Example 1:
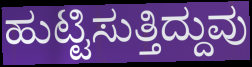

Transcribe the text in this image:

ಹುಟ್ಟಿಸುತ್ತಿದ್ದುವು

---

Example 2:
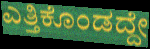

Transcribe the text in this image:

ಎತ್ತಿಕೊಂಡದ್ದೇ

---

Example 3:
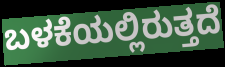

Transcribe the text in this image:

ಬಳಕೆಯಲ್ಲಿರುತ್ತದೆ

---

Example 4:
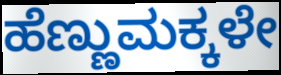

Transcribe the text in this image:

ಹೆಣ್ಣುಮಕ್ಕಳೇ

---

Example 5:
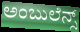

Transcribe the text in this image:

ಅಂಬುಲೆನ್ಸ್